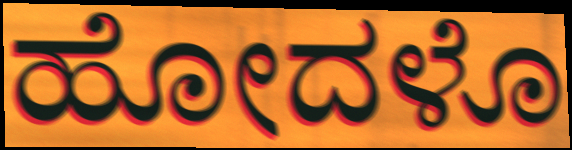
ಹೋದಳೊ